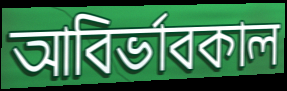
আবির্ভাবকাল